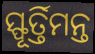
ସ୍ଫୂର୍ତ୍ତିମନ୍ତ